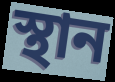
স্থান